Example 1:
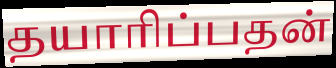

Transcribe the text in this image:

தயாரிப்பதன்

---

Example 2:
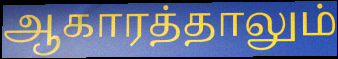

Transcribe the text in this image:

ஆகாரத்தாலும்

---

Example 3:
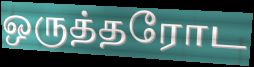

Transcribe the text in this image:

ஒருத்தரோட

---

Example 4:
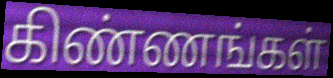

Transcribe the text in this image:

கிண்ணங்கள்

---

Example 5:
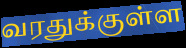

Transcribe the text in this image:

வரதுக்குள்ள